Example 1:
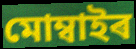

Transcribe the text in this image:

মোম্বাইৰ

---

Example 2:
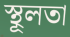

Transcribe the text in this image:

স্থূলতা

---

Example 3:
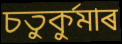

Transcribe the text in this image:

চতুৰ্কুমাৰ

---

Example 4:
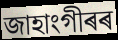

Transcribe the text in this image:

জাহাংগীৰৰ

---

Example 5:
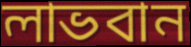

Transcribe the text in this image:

লাভবান